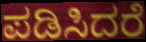
ಪಡಿಸಿದರೆ